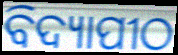
ବିଦ୍ୟାପୀଠ